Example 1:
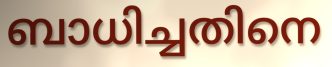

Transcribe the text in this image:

ബാധിച്ചതിനെ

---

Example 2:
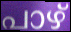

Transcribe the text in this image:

പാഴ്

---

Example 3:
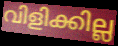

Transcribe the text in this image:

വിളിക്കില്ല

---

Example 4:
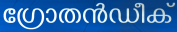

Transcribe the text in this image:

ഗ്രോതൻഡീക്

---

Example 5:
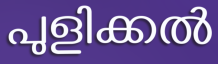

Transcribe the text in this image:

പുളിക്കൽ